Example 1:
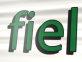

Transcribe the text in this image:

fiel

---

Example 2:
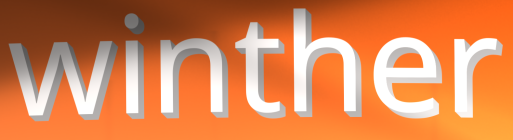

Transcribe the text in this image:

winther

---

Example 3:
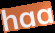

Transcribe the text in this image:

haa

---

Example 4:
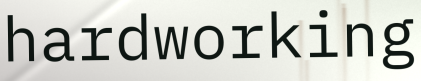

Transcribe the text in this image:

hardworking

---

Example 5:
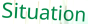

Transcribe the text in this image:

Situation